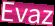
Evaz